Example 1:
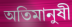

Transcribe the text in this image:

অতিমানুষী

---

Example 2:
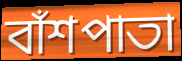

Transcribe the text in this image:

বাঁশপাতা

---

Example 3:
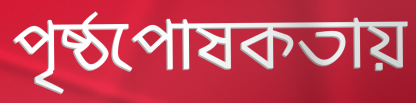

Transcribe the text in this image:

পৃষ্ঠপোষকতায়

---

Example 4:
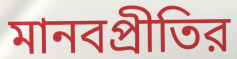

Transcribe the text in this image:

মানবপ্রীতির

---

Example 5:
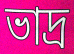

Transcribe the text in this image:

ভাদ্র